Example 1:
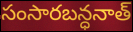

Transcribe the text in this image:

సంసారబన్ధనాత్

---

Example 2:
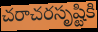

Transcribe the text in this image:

చరాచరసృష్టికి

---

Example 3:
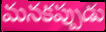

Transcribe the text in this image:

మనకప్పుడు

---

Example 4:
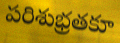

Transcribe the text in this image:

పరిశుభ్రతకూ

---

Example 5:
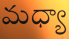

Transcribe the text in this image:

మధ్యా